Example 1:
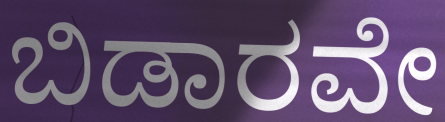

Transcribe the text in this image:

ಬಿಡಾರವೇ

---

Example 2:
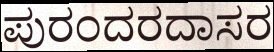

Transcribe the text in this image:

ಪುರಂದರದಾಸರ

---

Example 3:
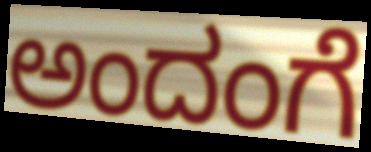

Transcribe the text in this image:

ಅಂದಂಗೆ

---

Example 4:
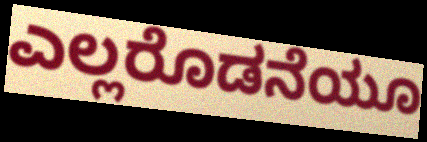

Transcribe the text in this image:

ಎಲ್ಲರೊಡನೆಯೂ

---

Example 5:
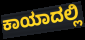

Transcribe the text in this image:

ಕಾಯಾದಲ್ಲಿ